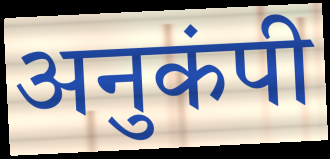
अनुकंपी